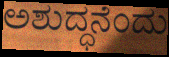
ಅಶುದ್ಧನೆಂದು